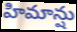
హిమాన్షు